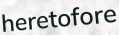
heretofore